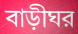
বাড়ীঘর